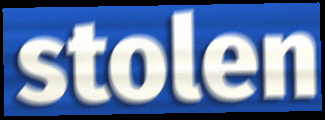
stolen